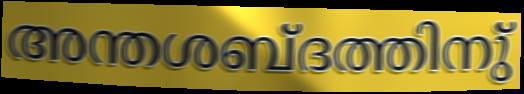
അന്തശബ്ദത്തിനു്